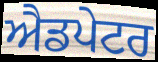
ਐਡਪੇਟਰ